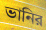
ভানির